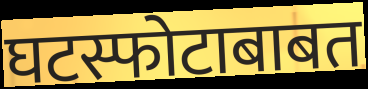
घटस्फोटाबाबत